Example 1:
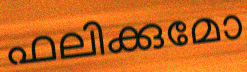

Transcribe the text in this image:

ഫലിക്കുമോ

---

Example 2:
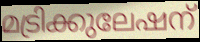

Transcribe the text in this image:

മട്രിക്കുലേഷന്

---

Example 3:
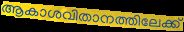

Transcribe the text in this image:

ആകാശവിതാനത്തിലേക്ക്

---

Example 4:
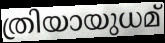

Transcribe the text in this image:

ത്രിയായുധമ്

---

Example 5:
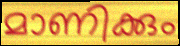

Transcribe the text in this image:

മാണിക്കും